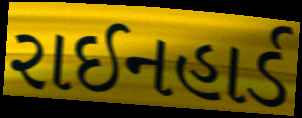
રાઈનહાર્ડ